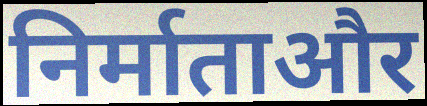
निर्माताऔर